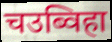
चउब्विहा